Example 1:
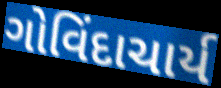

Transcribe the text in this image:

ગોવિંદાચાર્ય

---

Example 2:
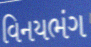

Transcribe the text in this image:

વિનયભંગ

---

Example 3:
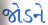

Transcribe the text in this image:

જોડને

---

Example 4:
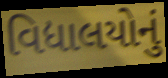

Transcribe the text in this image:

વિદ્યાલયોનું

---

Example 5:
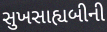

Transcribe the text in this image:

સુખસાહ્યબીની